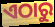
ଏଠାରୁ